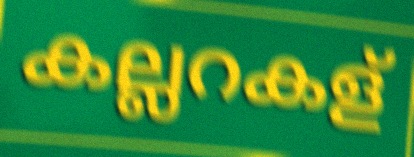
കല്ലറകള്